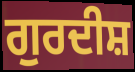
ਗੁਰਦੀਸ਼